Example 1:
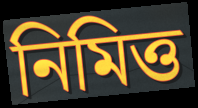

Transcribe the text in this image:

নিমিত্ত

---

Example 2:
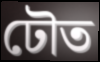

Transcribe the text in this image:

ঢৌত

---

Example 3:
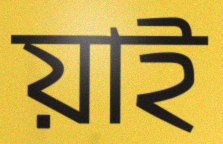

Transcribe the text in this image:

য়াই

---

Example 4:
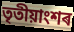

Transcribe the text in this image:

তৃতীয়াংশৰ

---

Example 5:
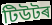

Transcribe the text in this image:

টিউটৰ